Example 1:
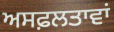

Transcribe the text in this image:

ਅਸਫ਼ਲਤਾਵਾਂ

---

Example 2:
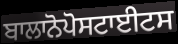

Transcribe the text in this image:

ਬਾਲਾਨੋਪੋਸਟਾਈਟਸ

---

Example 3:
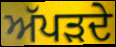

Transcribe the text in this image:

ਅੱਪੜਦੇ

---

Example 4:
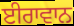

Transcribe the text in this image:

ਈਰਾਵਾਨ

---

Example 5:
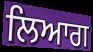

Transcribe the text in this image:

ਲਿਆਗ